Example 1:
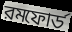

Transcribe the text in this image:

রমফোর্ড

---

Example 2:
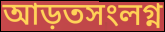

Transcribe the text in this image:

আড়তসংলগ্ন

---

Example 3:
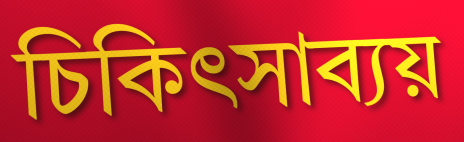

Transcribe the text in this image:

চিকিৎসাব্যয়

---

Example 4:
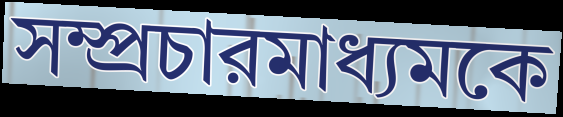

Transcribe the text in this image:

সম্প্রচারমাধ্যমকে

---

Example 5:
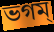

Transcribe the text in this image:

ভগম্